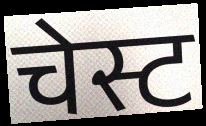
चेस्‍ट